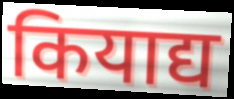
कियाद्य